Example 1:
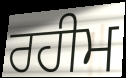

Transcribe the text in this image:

ਰਹੀਮ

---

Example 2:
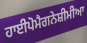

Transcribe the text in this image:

ਹਾਈਪੋਮੈਗਨੇਸ਼ੀਮੀਆ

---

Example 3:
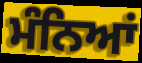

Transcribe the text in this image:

ਮੰਨਿਆਂ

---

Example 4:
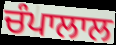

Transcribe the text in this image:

ਚੰਪਾਲਾਲ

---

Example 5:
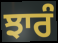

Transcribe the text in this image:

ਝਾਰੰ